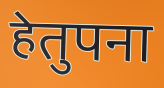
हेतुपना